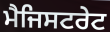
ਮੈਜਿਸਟਰੇਟ